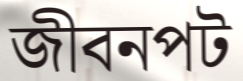
জীবনপট